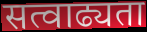
सत्वाढ्यता